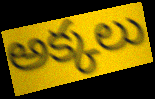
అక్కలు